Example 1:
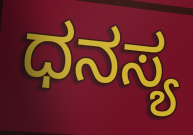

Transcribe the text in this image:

ಧನಸ್ಯ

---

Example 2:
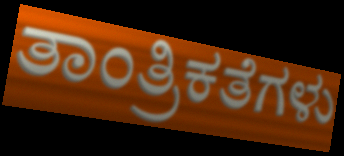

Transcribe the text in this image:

ತಾಂತ್ರಿಕತೆಗಳು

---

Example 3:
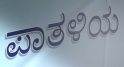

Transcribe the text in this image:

ಪಾತಳಿಯ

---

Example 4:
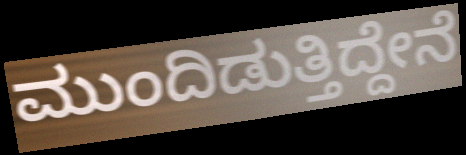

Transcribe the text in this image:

ಮುಂದಿಡುತ್ತಿದ್ದೇನೆ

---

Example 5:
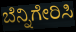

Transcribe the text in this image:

ಬೆನ್ನಿಗೇರಿಸಿ